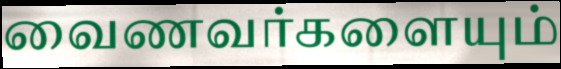
வைணவர்களையும்